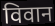
विवान